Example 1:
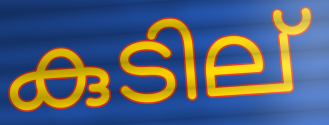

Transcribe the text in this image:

കുടില്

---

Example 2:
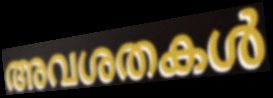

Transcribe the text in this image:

അവശതകൾ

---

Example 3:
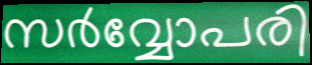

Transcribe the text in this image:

സർവ്വോപരി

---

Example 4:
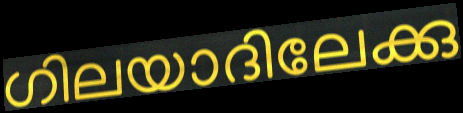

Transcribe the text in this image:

ഗിലയാദിലേക്കു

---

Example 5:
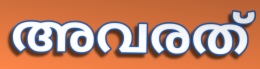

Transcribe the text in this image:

അവരത്